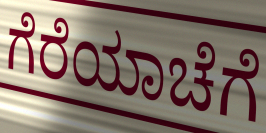
ಗೆರೆಯಾಚೆಗೆ